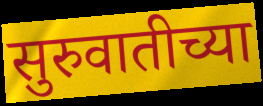
सुरुवातीच्या